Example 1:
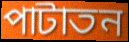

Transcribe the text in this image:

পাটাতন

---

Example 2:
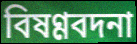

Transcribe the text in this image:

বিষণ্ণবদনা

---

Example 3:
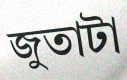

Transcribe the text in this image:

জুতাটা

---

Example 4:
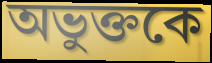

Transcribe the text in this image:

অভুক্তকে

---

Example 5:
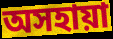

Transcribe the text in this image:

অসহায়া